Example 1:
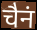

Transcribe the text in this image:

चैनं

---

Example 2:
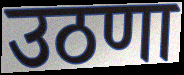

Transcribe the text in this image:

उठणा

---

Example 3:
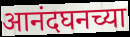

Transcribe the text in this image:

आनंदघनच्या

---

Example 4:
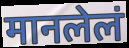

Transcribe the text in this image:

मानलेलं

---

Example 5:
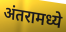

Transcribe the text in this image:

अंतरामध्ये